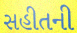
સહીતની